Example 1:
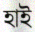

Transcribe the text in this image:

হাই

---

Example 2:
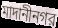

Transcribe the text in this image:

মাদানীনগর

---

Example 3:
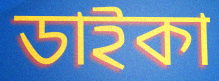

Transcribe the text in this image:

ডাইকা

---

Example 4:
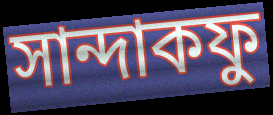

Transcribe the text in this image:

সান্দাকফু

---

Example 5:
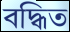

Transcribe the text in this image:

বদ্ধিত